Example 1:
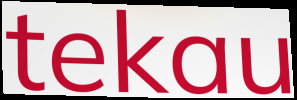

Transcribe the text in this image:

tekau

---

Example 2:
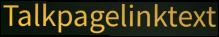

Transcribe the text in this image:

Talkpagelinktext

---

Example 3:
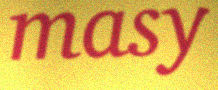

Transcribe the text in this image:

masy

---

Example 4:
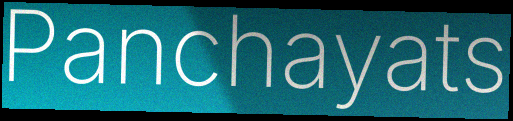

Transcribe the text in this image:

Panchayats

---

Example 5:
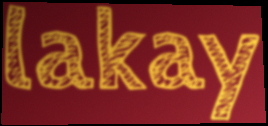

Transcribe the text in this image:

lakay